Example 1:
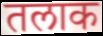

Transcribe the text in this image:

तलाक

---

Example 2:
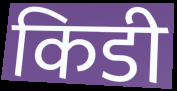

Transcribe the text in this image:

किडी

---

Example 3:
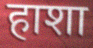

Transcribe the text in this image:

हाशा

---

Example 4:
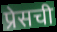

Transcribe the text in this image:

प्रेसची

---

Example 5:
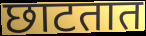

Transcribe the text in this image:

छाटतात